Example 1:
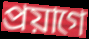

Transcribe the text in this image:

প্রয়াগে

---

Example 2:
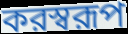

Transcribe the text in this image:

করস্বরূপ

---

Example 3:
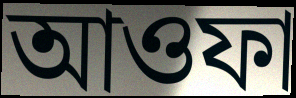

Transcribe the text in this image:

আওফা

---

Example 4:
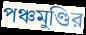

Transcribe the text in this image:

পঞ্চমুণ্ডির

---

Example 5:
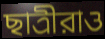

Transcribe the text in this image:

ছাত্রীরাও